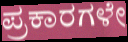
ಪ್ರಕಾರಗಳೇ